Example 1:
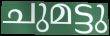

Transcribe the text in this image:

ചുമട്ടു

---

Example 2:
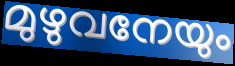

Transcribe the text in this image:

മുഴുവനേയും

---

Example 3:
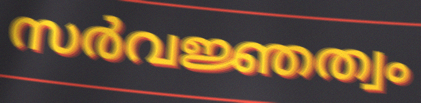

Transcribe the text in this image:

സർവജ്ഞത്വം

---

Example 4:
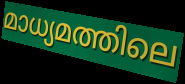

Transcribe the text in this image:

മാധ്യമത്തിലെ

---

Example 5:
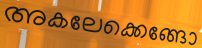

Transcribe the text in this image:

അകലേക്കെങ്ങോ